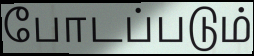
போடப்படும்